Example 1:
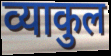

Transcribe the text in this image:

व्याकुल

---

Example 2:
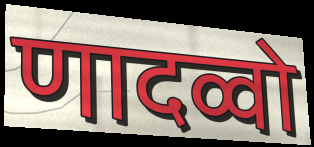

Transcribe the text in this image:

णादव्वो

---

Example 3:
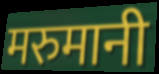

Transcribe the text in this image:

मरुमानी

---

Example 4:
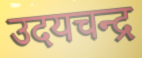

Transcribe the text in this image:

उदयचन्द्र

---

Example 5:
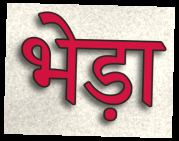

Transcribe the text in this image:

भेड़ा